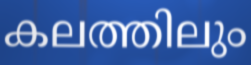
കലത്തിലും